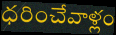
ధరించేవాళ్లం